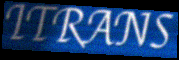
ITRANS